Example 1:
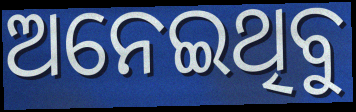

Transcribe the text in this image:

ଅନେଇଥିବୁ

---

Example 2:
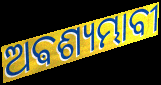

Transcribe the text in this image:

ଅଵଶ୍ୟମ୍ଭାବୀ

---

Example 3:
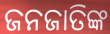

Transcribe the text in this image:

ଜନଜାତିଙ୍କ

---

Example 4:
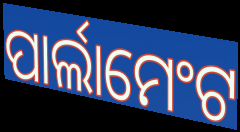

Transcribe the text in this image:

ପାର୍ଲାମେଂଟ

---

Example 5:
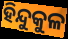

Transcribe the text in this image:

ହିନ୍ଦୁକୁଳ